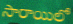
సారాయిలో